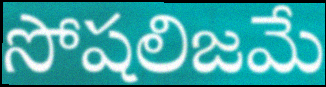
సోషలిజమే